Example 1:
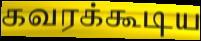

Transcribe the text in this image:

கவரக்கூடிய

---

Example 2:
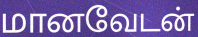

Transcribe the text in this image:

மானவேடன்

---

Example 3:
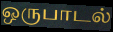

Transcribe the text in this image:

ஒருபாடல்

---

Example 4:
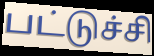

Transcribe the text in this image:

பட்டுச்சி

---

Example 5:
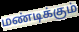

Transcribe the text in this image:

மண்டிக்கும்